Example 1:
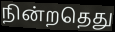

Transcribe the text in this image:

நின்றதெது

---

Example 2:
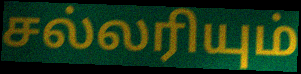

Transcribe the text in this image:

சல்லரியும்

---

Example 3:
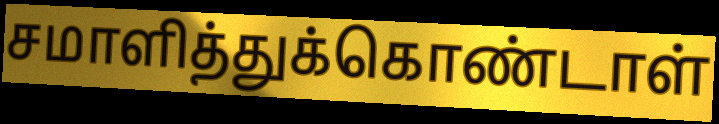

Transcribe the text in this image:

சமாளித்துக்கொண்டாள்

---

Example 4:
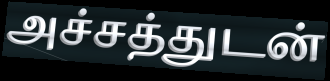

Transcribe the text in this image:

அச்சத்துடன்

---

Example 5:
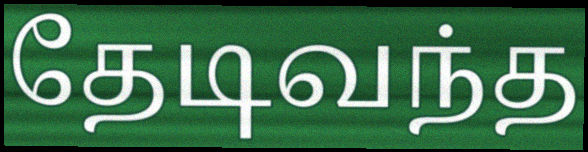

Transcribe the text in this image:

தேடிவந்த